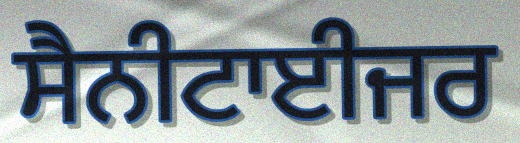
ਸੈਨੀਟਾਈਜਰ